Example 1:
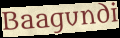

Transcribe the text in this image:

Baagundi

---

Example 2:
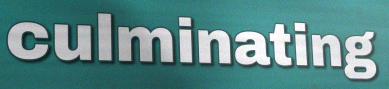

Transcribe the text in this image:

culminating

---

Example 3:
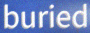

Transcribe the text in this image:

buried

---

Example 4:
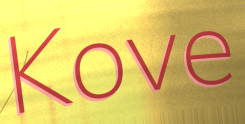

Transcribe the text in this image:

Kove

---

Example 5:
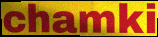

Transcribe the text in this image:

chamki